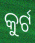
କୁର୍ଟ